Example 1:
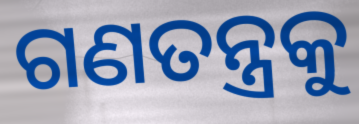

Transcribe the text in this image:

ଗଣତନ୍ତ୍ରକୁ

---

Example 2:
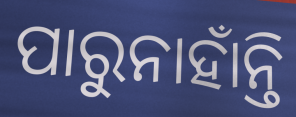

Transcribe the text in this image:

ପାରୁନାହାଁନ୍ତି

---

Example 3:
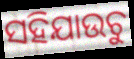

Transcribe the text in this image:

ସହିଯାଉଚୁ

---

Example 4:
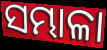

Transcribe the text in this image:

ସମ୍ଭାଳା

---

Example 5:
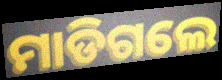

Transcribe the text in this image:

ମାଡିଗଲେ